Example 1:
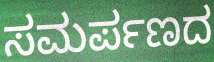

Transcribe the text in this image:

ಸಮರ್ಪಣದ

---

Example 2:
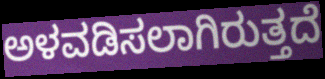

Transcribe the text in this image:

ಅಳವಡಿಸಲಾಗಿರುತ್ತದೆ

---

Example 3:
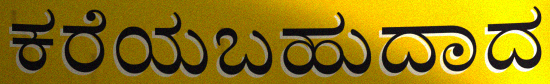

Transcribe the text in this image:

ಕರೆಯಬಹುದಾದ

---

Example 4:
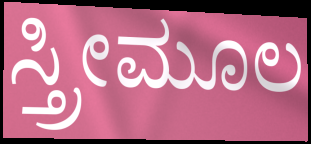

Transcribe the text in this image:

ಸ್ತ್ರೀಮೂಲ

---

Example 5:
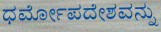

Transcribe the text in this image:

ಧರ್ಮೋಪದೇಶವನ್ನು